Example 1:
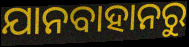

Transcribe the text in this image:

ଯାନବାହାନରୁ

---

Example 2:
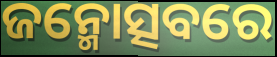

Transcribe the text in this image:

ଜନ୍ମୋତ୍ସବରେ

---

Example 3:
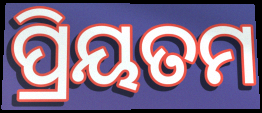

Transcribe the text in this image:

ପ୍ରିୟତମ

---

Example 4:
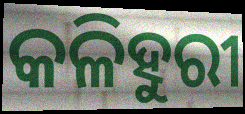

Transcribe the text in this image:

କଳିହୁରୀ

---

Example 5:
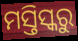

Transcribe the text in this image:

ମସ୍ତିସ୍କରୁ